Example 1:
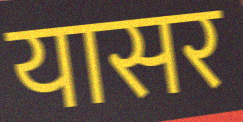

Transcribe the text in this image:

यासर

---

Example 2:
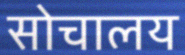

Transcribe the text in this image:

सोचालय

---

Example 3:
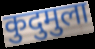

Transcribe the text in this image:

कुदुमुला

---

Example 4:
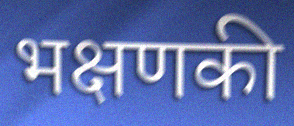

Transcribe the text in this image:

भक्षणकी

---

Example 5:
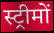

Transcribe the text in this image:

स्ट्रीमों